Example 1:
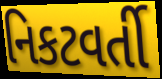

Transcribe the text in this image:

નિકટવર્તી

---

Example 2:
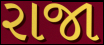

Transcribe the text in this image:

રાજા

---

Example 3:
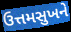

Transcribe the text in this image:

ઉત્તમસુખને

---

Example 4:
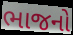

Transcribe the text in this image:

ભાજનો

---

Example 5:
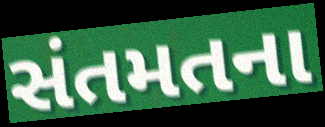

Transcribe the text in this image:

સંતમતના